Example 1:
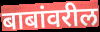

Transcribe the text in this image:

बाबांवरील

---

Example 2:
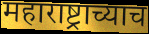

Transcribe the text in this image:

महाराष्ट्राच्याच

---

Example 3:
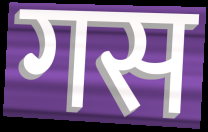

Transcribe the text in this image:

गस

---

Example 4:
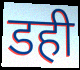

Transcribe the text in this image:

डही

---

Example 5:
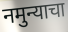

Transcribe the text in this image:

नमुन्याचा